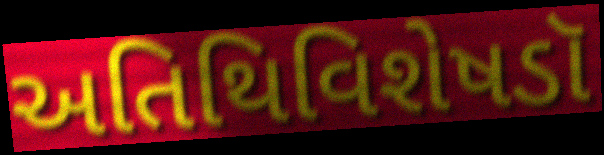
અતિથિવિશેષડૉ